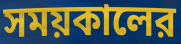
সময়কালের